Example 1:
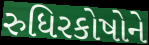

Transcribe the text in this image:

રુધિરકોષોને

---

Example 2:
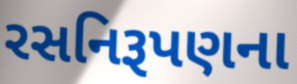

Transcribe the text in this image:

રસનિરૂપણના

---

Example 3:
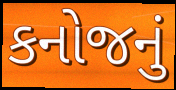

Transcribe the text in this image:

કનોજનું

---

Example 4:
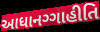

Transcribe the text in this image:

આધાનગ્ગાહીતિ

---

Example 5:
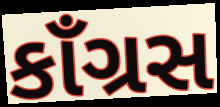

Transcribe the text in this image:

કાઁગ્રસ